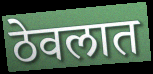
ठेवलात